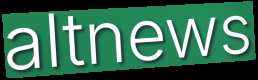
altnews